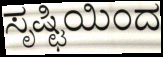
ಸೃಷ್ಟಿಯಿಂದ